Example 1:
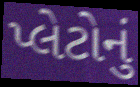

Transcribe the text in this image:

પ્લેટોનું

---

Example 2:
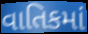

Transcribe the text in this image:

વાતિકમાં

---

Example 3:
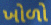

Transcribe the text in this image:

ખોળો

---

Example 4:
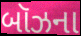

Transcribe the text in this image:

બૉઝના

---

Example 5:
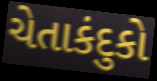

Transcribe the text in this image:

ચેતાકંદુકો